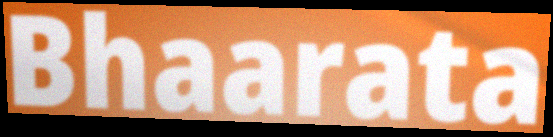
Bhaarata